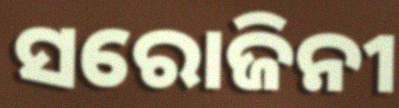
ସରୋଜିନୀ